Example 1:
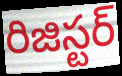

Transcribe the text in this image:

రిజిస్టర్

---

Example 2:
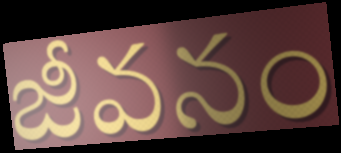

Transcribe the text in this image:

జీవనం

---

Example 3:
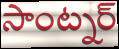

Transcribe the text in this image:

సాంట్నర్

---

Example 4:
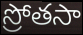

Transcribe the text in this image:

స్రోతసా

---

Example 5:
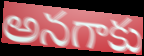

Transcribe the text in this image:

అనగాకు